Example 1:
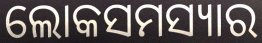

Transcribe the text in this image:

ଲୋକସମସ୍ୟାର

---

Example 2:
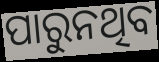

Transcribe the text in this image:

ପାରୁନଥିବ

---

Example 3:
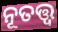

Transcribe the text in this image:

ନୂତତ୍ତ୍ଵ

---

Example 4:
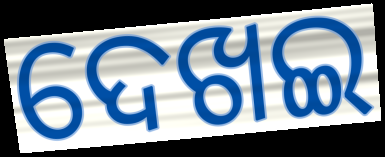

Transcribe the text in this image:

ଦେଖଇ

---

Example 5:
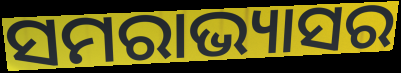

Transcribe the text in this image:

ସମରାଭ୍ୟାସର